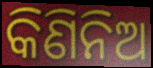
କିଣିନିଅ